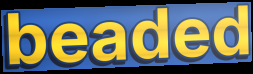
beaded